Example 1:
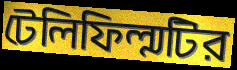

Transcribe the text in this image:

টেলিফিল্মটির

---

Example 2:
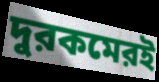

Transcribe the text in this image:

দুরকমেরই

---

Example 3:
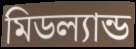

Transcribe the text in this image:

মিডল্যান্ড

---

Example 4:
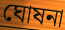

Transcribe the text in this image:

ঘোষনা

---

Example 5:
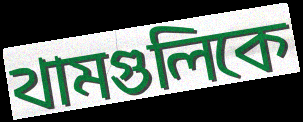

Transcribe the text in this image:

থামগুলিকে